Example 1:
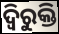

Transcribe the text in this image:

ଦ୍ୱିରୁକ୍ତି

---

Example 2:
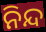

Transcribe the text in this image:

ନିନ୍ଦ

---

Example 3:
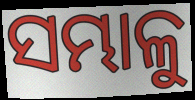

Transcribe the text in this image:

ସମ୍ଭାଳୁ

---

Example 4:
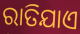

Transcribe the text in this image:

ରାତିଯାଏ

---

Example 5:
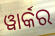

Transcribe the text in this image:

ୱାର୍କର